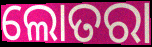
ଲୋତରା